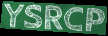
YSRCP